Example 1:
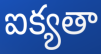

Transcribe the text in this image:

ఐక్యతా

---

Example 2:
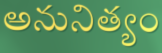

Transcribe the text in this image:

అనునిత్యం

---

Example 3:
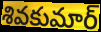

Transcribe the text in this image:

శివకుమార్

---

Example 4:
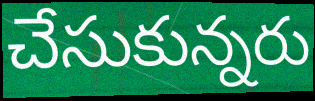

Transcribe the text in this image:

చేసుకున్నరు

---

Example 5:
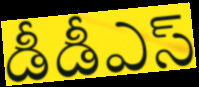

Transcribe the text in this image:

డీడీఎస్